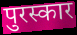
पुरस्कार